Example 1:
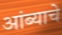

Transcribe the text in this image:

आंब्याचे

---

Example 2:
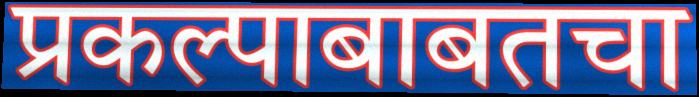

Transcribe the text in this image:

प्रकल्पाबाबतचा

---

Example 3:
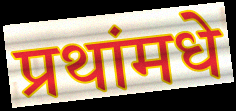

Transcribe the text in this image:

प्रथांमधे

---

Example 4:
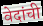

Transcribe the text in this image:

वेदांची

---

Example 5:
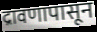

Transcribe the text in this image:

द्रावणापासून